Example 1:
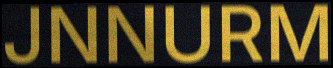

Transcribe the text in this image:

JNNURM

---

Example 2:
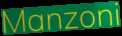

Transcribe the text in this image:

Manzoni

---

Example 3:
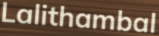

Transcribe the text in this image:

Lalithambal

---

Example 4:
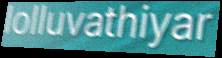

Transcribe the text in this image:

lolluvathiyar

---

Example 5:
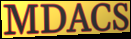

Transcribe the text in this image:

MDACS